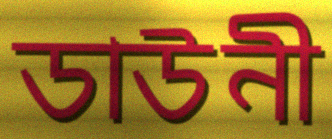
ডাউনী